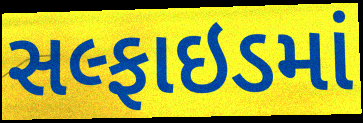
સલ્ફાઇડમાં